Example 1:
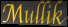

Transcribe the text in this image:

Mullik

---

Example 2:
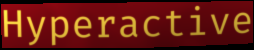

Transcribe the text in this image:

Hyperactive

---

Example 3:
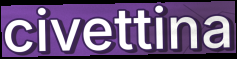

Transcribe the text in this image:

civettina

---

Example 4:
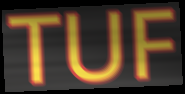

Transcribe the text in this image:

TUF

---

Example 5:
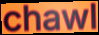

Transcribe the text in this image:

chawl